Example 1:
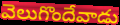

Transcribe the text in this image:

వెలుగొందేవాడు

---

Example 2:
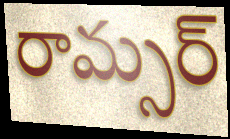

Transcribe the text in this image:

రామ్సర్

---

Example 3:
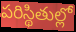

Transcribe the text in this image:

పరిస్థితుల్లో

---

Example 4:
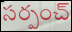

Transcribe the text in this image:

సర్పంచ్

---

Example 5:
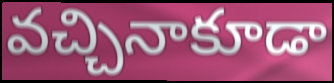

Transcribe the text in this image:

వచ్చినాకూడా